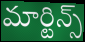
మార్టిన్స్